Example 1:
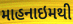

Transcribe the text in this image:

માહનાઇમથી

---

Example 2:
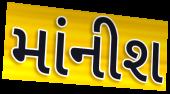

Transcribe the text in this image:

માંનીશ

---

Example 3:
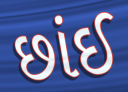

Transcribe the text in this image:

છાંઈ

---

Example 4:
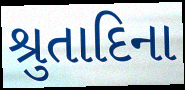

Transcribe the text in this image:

શ્રુતાદિના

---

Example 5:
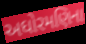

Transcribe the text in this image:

અઘોરમણિના